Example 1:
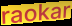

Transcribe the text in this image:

raokar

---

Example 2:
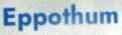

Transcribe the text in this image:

Eppothum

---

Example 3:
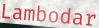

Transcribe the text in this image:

Lambodar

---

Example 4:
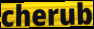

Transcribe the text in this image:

cherub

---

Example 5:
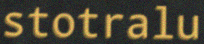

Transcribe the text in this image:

stotralu